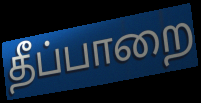
தீப்பாறை